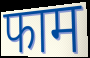
फाम